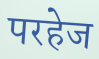
परहेज